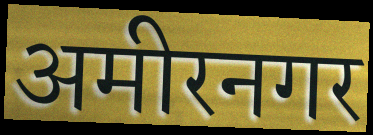
अमीरनगर